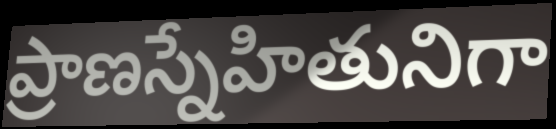
ప్రాణస్నేహితునిగా